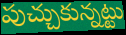
పుచ్చుకున్నట్టు